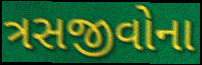
ત્રસજીવોના